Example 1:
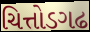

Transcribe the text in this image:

ચિત્તોડગઢ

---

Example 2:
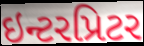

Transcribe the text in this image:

ઇન્ટરપ્રિટર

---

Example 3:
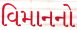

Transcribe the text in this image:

વિમાનનો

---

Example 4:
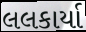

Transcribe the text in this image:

લલકાર્યા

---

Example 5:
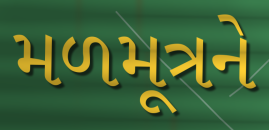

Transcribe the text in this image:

મળમૂત્રને